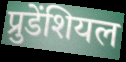
प्रुडेंशियल